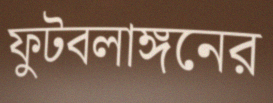
ফুটবলাঙ্গনের